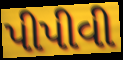
પીપીવી